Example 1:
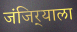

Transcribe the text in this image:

जंजिर्याला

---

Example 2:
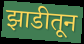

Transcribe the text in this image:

झाडीतून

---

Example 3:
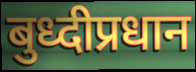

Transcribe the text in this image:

बुध्दीप्रधान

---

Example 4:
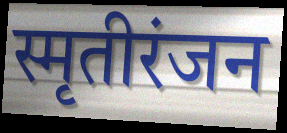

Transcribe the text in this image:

स्मृतीरंजन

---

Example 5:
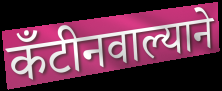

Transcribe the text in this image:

कँटीनवाल्याने